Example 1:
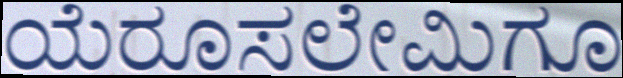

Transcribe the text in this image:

ಯೆರೂಸಲೇಮಿಗೂ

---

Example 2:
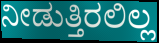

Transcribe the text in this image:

ನೀಡುತ್ತಿರಲಿಲ್ಲ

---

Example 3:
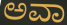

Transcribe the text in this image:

ಅವಾ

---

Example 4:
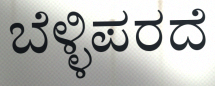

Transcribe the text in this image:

ಬೆಳ್ಳಿಪರದೆ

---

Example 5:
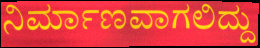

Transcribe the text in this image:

ನಿರ್ಮಾಣವಾಗಲಿದ್ದು